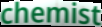
chemist